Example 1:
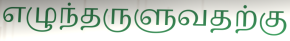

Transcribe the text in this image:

எழுந்தருளுவதற்கு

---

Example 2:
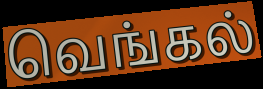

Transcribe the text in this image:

வெங்கல்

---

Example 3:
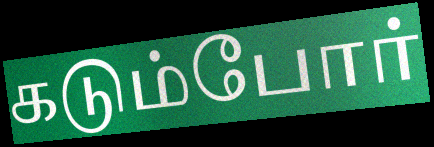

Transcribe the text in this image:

கடும்போர்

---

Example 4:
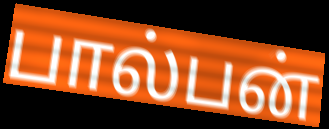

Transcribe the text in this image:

பால்பன்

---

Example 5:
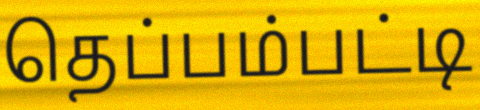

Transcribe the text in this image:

தெப்பம்பட்டி